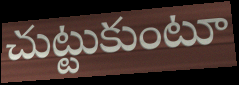
చుట్టుకుంటూ